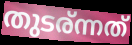
തുടര്ന്നത്